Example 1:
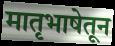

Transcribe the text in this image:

मातृभाषेतून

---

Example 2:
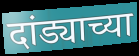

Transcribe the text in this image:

दांड्याच्या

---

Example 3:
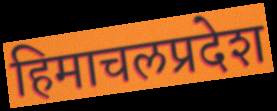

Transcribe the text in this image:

हिमाचलप्रदेश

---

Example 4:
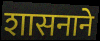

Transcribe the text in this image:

शासनाने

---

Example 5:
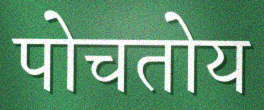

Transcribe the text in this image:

पोचतोय